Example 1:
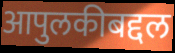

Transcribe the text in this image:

आपुलकीबद्दल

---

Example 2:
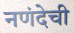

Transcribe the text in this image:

नणंदेची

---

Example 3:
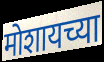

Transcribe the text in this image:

मोशायच्या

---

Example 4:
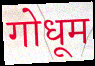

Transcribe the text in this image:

गोधूम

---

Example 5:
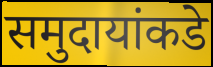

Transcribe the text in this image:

समुदायांकडे